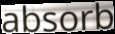
absorb